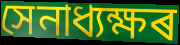
সেনাধ্যক্ষৰ